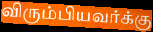
விரும்பியவர்க்கு